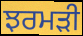
ਝਰਮੜੀ